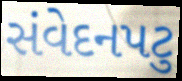
સંવેદનપટુ